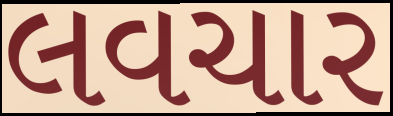
લવચાર